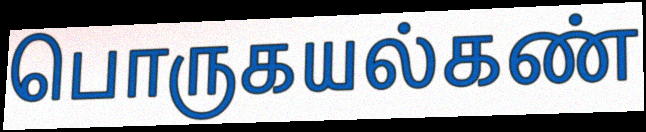
பொருகயல்கண்